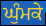
ਘੁੰਮਕੇ